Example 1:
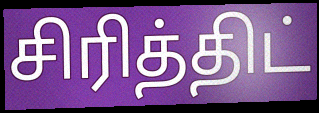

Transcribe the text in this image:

சிரித்திட்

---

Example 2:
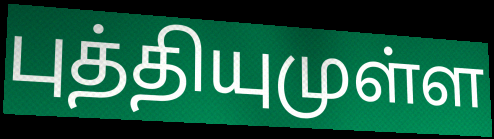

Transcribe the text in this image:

புத்தியுமுள்ள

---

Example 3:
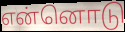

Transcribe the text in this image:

என்னொடு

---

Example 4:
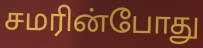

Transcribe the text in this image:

சமரின்போது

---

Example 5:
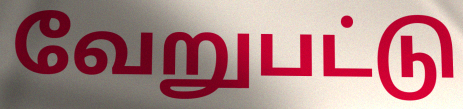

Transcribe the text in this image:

வேறுபட்டு